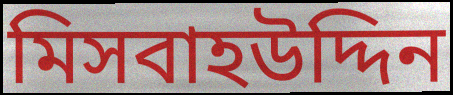
মিসবাহউদ্দিন